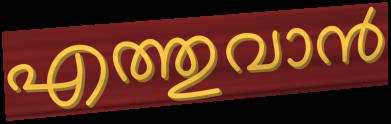
എത്തുവാൻ